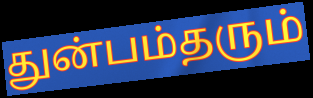
துன்பம்தரும்